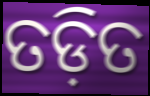
ତଡ଼ିତ